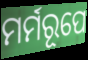
ମର୍ମରୂପେ